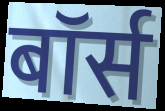
बॉर्स